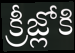
క్రీజ్లోకి